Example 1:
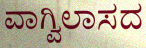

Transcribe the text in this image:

ವಾಗ್ವಿಲಾಸದ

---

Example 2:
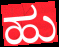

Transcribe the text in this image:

ಹು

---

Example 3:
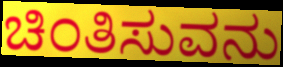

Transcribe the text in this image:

ಚಿಂತಿಸುವನು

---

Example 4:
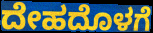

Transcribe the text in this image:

ದೇಹದೊಳಗೆ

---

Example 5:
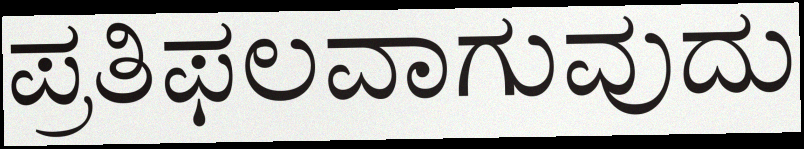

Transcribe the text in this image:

ಪ್ರತಿಫಲವಾಗುವುದು